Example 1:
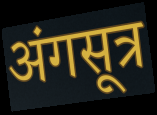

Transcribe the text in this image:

अंगसूत्र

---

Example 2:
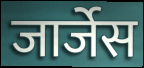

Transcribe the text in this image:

जार्जेस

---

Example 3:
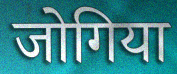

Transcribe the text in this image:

जोगिया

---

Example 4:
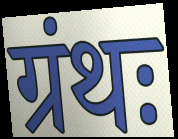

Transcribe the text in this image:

ग्रंथः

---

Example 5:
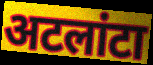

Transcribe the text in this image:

अटलांटा